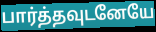
பார்த்தவுடனேயே